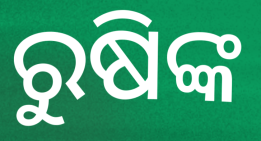
ରୁଷିଙ୍କ